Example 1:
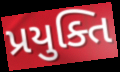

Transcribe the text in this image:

પ્રયુક્તિ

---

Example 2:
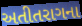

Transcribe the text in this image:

અતીતરાગના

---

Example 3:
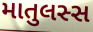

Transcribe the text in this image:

માતુલસ્સ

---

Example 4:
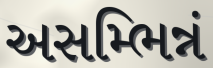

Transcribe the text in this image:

અસમ્ભિન્નં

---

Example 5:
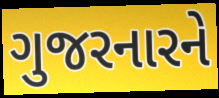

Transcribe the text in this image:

ગુજરનારને